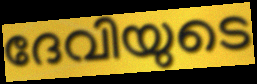
ദേവിയുടെ